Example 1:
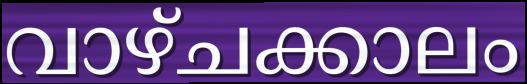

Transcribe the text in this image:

വാഴ്ചക്കാലം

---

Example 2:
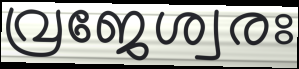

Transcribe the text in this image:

വ്രജേശ്വരഃ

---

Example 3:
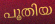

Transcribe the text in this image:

പൂതിയ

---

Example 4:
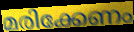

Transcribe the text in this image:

മരിക്കേണം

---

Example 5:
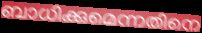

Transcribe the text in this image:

ബാധിക്കുമെന്നതിനെ